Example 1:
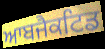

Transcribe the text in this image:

ਆਬਜੈਕਟਿਡ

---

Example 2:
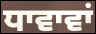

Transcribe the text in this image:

ਧਾਵਾਵਾਂ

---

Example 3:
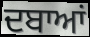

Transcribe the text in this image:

ਦਬਾਆਂ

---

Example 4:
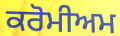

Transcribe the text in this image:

ਕਰੋਮੀਅਮ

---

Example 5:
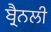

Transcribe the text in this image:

ਬ੍ਰੈਨਲੀ